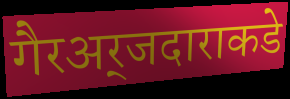
गैरअर्जदाराकडे